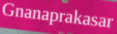
Gnanaprakasar